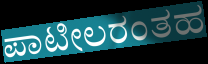
ಪಾಟೀಲರಂತಹ